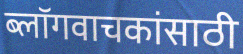
ब्लॉगवाचकांसाठी